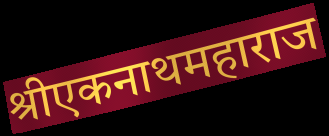
श्रीएकनाथमहाराज